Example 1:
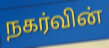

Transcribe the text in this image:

நகர்வின்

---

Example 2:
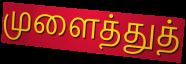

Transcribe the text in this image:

முளைத்துத்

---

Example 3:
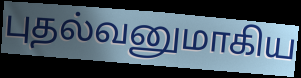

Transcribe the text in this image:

புதல்வனுமாகிய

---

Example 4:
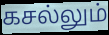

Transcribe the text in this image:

கசல்லும்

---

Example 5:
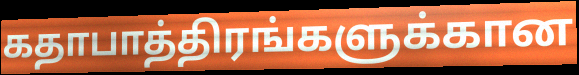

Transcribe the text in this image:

கதாபாத்திரங்களுக்கான